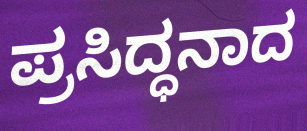
ಪ್ರಸಿದ್ಧನಾದ